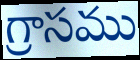
గ్రాసము